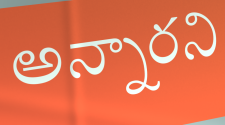
అన్నారని